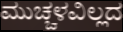
ಮುಚ್ಚಳವಿಲ್ಲದ